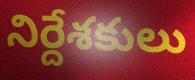
నిర్దేశకులు